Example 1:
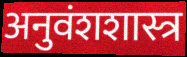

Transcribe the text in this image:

अनुवंशशास्त्र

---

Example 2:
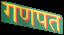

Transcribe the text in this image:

गणपत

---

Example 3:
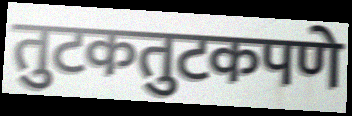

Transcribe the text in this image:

तुटकतुटकपणे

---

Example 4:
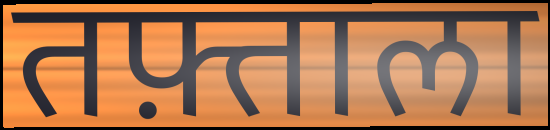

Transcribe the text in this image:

तफ़्ताला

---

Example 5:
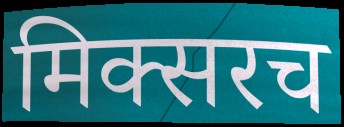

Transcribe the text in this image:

मिक्सरच